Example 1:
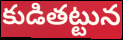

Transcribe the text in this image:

కుడితట్టున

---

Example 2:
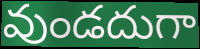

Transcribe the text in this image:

వుండదుగా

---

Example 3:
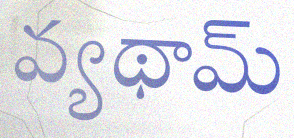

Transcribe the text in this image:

వ్యథామ్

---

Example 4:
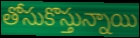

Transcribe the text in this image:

తోసుకొస్తున్నాయి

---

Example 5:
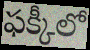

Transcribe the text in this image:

ఫక్కీలో